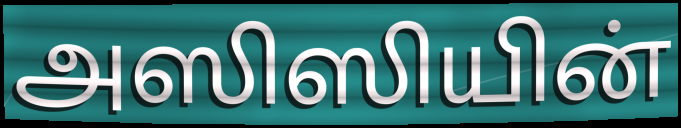
அஸிஸியின்